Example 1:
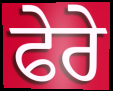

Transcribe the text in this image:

ਫੇਰੇ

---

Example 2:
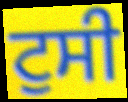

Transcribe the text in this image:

ਟੁਸੀ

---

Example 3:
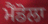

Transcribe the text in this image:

ਮੈਂਡੋਲਾ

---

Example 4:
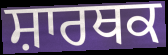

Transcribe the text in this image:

ਸ਼ਾਰਥਕ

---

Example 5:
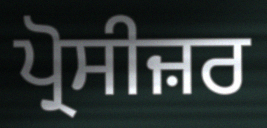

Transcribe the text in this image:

ਪ੍ਰੋਸੀਜ਼ਰ